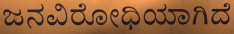
ಜನವಿರೋಧಿಯಾಗಿದೆ